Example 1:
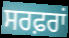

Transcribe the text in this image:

ਸਰਫ਼ਰਾਂ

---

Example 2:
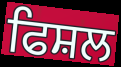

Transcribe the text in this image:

ਫਿਸ਼ਲ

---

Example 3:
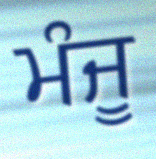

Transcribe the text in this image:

ਮੰਜੂ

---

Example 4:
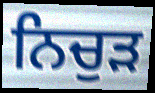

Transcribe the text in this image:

ਨਿਚੁੜ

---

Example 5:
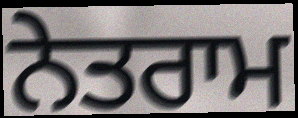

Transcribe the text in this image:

ਨੇਤਰਾਮ